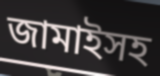
জামাইসহ